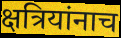
क्षत्रियांनाच